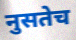
नुसतेच